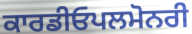
ਕਾਰਡੀਓਪਲਮੋਨਰੀ